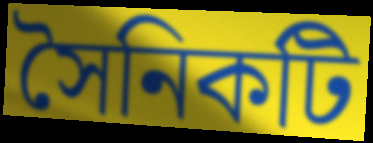
সৈনিকটি